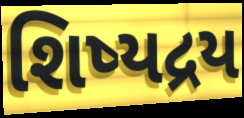
શિષ્યદ્રય